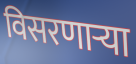
विसरणाऱ्या